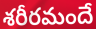
శరీరమందే